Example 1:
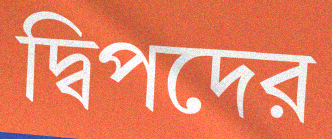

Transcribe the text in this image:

দ্বিপদের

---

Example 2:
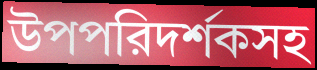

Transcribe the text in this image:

উপপরিদর্শকসহ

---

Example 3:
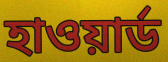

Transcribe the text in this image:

হাওয়ার্ড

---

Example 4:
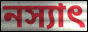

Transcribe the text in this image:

নস্যাৎ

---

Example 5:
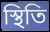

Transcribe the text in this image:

স্থিতি